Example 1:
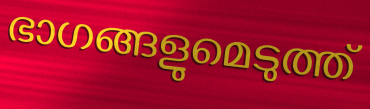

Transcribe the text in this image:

ഭാഗങ്ങളുമെടുത്ത്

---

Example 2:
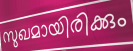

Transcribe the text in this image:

സുഖമായിരിക്കും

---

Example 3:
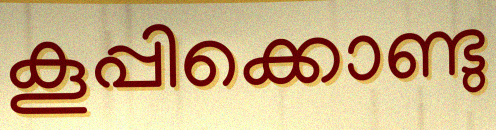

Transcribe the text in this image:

കൂപ്പിക്കൊണ്ടു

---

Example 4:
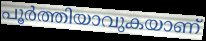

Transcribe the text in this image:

പൂർത്തിയാവുകയാണ്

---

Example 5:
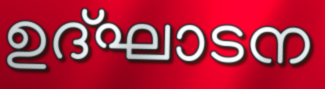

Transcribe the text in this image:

ഉദ്ഘാടന